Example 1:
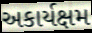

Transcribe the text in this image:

અકાર્યક્ષમ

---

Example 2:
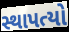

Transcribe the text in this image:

સ્થાપત્યો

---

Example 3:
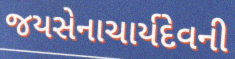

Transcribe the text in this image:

જયસેનાચાર્યદેવની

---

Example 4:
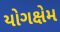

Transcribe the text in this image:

યોગક્ષેમ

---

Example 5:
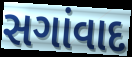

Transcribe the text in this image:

સગાંવાદ